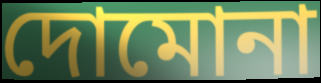
দোমোনা